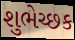
શુભેચ્છક